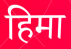
हिमा